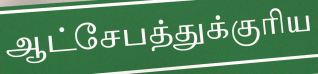
ஆட்சேபத்துக்குரிய